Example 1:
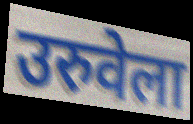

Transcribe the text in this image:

उरुवेला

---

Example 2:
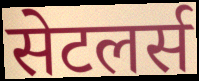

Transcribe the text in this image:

सेटलर्स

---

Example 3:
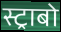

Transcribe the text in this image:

स्ट्राबो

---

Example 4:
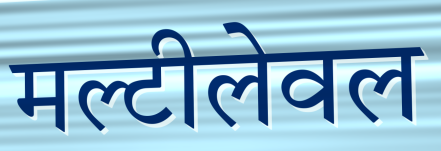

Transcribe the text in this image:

मल्टीलेवल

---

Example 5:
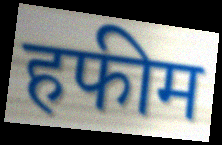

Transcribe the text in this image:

हफीम